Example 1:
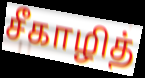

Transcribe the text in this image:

சீகாழித்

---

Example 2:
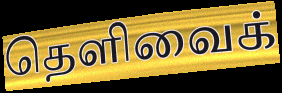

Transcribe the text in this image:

தெளிவைக்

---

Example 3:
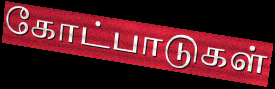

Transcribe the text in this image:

கோட்பாடுகள்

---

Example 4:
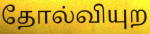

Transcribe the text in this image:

தோல்வியுற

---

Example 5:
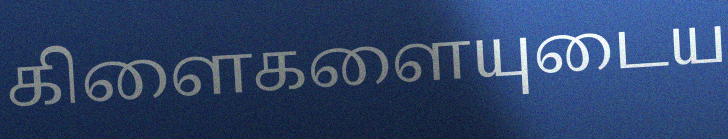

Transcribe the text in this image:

கிளைகளையுடைய